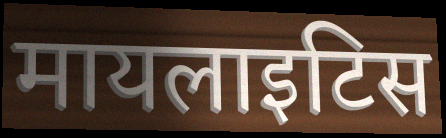
मायलाइटिस